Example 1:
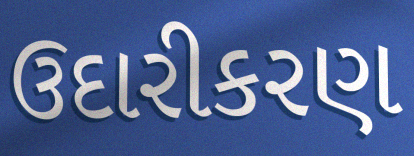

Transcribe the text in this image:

ઉદારીકરણ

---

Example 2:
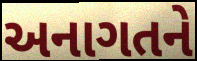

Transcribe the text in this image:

અનાગતને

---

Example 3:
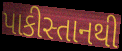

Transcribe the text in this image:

પાકીસ્તાનથી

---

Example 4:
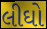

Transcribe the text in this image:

લીઘો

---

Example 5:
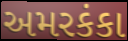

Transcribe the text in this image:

અમરકંકા